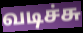
வடிச்சு